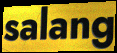
salang